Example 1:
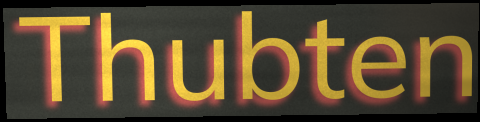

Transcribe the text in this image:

Thubten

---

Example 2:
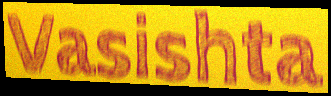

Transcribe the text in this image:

Vasishta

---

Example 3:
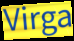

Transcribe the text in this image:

Virga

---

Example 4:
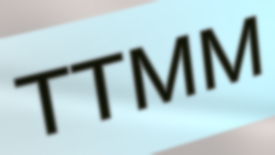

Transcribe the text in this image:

TTMM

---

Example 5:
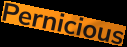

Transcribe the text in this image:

Pernicious